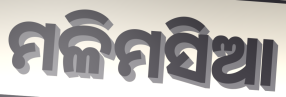
ମଳିମସିଆ